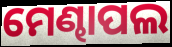
ମେଣ୍ଢାପଲ